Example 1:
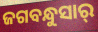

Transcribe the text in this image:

ଜଗବନ୍ଧୁସାର୍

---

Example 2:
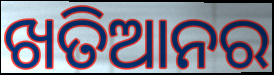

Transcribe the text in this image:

ଖତିଆନର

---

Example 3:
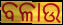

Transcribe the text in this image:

ବଳାଉ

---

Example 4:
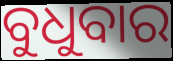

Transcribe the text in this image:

ବୁଧୁବାର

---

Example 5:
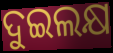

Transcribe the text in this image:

ଦୁଇଲକ୍ଷ